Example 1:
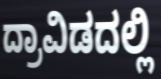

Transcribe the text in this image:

ದ್ರಾವಿಡದಲ್ಲಿ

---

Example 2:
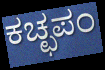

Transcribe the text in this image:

ಕಚ್ಛಪಂ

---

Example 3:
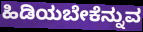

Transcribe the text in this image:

ಹಿಡಿಯಬೇಕೆನ್ನುವ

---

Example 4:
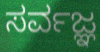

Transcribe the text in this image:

ಸರ್ವಜ್ಞ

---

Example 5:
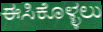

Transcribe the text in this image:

ಈಸಿಕೊಳ್ಳಲು